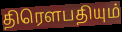
திரெளபதியும்